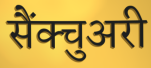
सैंक्चुअरी